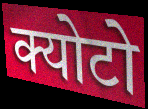
क्‍योटो